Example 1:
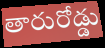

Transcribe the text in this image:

తారురోడ్డు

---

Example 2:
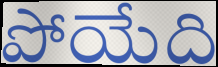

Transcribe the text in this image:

పోయేది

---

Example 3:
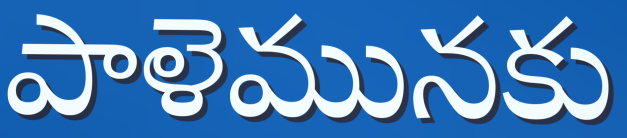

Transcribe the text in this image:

పాళెమునకు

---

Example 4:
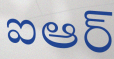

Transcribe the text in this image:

ఐఆర్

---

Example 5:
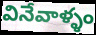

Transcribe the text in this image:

వినేవాళ్ళం